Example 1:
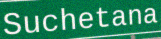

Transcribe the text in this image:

Suchetana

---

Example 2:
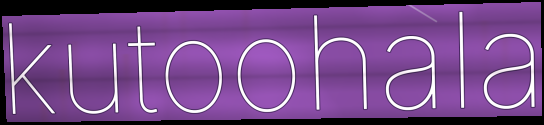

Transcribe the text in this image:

kutoohala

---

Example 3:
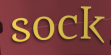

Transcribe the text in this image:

sock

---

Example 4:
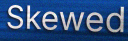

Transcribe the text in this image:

Skewed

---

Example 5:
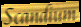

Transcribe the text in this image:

Scandium